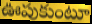
ఊపుకుంటూ